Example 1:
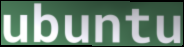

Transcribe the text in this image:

ubuntu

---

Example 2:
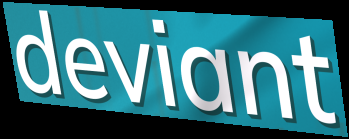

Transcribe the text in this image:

deviant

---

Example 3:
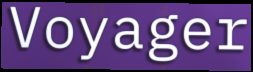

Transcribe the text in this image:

Voyager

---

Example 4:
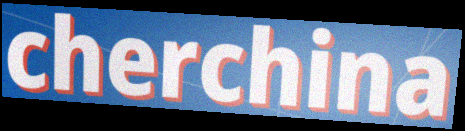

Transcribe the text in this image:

cherchina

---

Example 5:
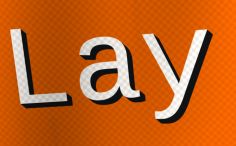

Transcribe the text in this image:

Lay